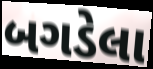
બગડેલા